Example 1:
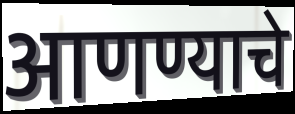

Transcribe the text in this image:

आणण्याचे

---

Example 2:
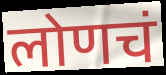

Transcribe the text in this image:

लोणचं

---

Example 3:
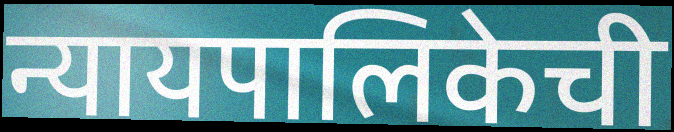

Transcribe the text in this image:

न्यायपालिकेची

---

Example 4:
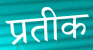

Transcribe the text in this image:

प्रतीक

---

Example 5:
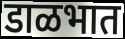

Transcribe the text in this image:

डाळभात